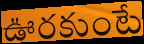
ఊరకుంటే